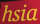
hsia